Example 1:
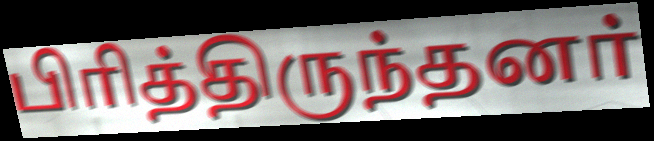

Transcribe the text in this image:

பிரித்திருந்தனர்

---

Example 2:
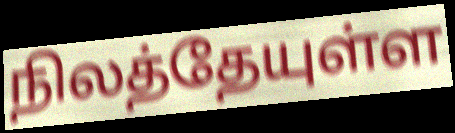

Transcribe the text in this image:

நிலத்தேயுள்ள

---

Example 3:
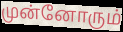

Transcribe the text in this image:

முன்னோரும்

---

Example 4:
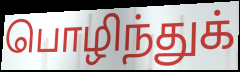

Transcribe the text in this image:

பொழிந்துக்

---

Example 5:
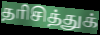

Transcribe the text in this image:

தரிசித்துக்